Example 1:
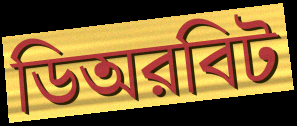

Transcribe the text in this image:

ডিঅরবিট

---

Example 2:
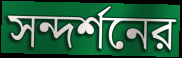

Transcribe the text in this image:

সন্দর্শনের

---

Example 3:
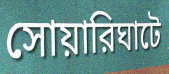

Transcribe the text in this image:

সোয়ারিঘাটে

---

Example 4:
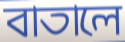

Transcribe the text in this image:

বাতালে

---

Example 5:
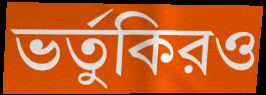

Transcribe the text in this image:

ভর্তুকিরও